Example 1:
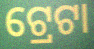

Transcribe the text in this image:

ଟ୍ରେଟା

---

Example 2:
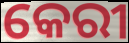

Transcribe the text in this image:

କେରୀ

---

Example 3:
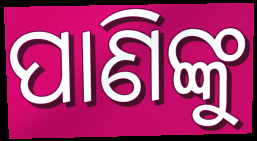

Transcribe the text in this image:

ପାଣିଙ୍କୁ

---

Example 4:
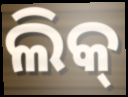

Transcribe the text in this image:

ଲିକ୍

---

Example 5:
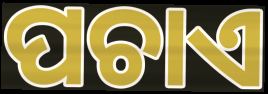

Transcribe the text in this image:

ପଚାଏ